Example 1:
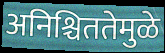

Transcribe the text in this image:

अनिश्चिततेमुळे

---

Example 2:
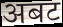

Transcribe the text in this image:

अबट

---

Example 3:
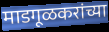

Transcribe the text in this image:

माडगूळकरांच्या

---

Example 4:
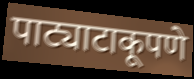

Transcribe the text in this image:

पाट्याटाकूपणे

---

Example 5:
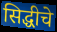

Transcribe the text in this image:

सिद्धीचे